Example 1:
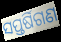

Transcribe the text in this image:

ସପ୍ତର୍ଷିଗଣ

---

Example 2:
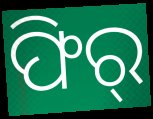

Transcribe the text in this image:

ଫିର୍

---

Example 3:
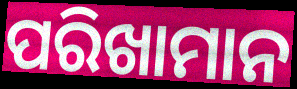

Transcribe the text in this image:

ପରିଖାମାନ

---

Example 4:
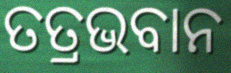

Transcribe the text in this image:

ତତ୍ରଭବାନ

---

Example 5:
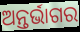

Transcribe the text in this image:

ଅନ୍ତର୍ଭାଗର